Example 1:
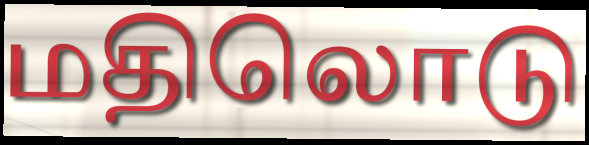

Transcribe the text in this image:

மதிலொடு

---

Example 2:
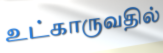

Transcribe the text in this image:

உட்காருவதில்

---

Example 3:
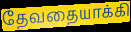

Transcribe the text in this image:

தேவதையாக்கி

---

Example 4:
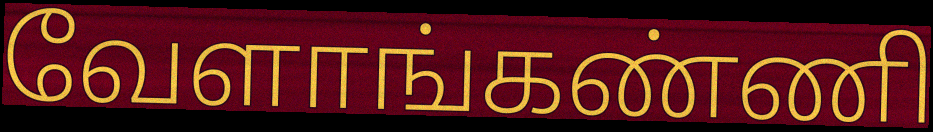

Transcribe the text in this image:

வேளாங்கண்ணி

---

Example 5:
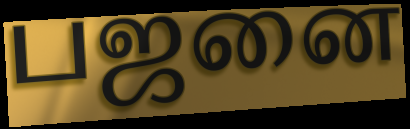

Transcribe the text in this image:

பஜனை